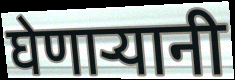
घेणाऱ्यानी